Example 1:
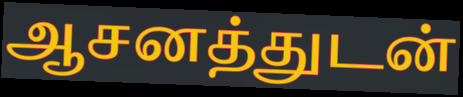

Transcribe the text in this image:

ஆசனத்துடன்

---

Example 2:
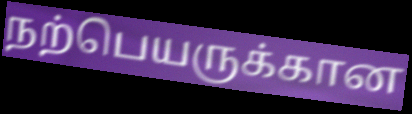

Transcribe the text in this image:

நற்பெயருக்கான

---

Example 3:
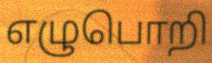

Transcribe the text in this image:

எழுபொறி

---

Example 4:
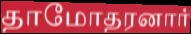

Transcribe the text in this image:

தாமோதரனார்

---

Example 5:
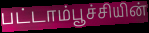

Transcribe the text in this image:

பட்டாம்பூச்சியின்